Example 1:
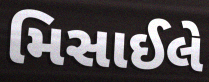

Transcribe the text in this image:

મિસાઈલે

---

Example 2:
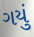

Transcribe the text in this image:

ગયું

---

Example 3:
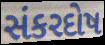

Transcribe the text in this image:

સંકરદોષ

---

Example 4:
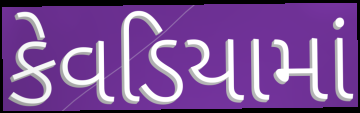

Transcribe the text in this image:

કેવડિયામાં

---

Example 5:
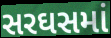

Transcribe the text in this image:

સરઘસમાં